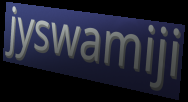
jyswamiji